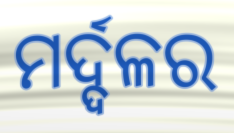
ମର୍ଦ୍ଦଳର